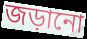
জড়ানো